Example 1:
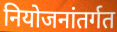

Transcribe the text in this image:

नियोजनांतर्गत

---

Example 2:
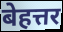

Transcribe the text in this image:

बेहत्तर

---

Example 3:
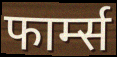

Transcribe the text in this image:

फार्म्स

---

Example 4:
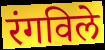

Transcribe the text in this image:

रंगविले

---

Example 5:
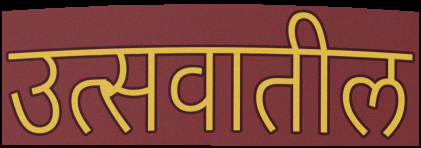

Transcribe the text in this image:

उत्सवातील